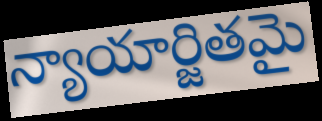
న్యాయార్జితమై